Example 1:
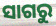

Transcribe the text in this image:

ସାଗରୁ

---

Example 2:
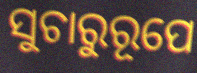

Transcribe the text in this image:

ସୁଚାରୁରୂପେ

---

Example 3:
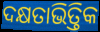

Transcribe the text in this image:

ଦକ୍ଷତାଭିତ୍ତିକ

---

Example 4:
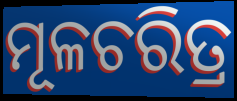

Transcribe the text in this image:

ମୂଳଚରିତ୍ର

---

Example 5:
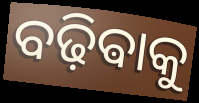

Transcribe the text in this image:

ବଢ଼ିଵାକୁ